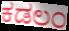
ಕಡಲಂ